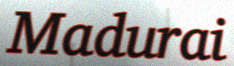
Madurai